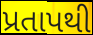
પ્રતાપથી